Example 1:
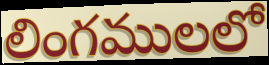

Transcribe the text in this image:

లింగములలో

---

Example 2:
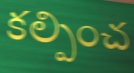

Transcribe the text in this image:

కల్పించ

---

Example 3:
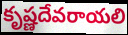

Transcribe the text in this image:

కృష్ణదేవరాయలి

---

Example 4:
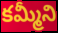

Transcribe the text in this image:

కమ్మీని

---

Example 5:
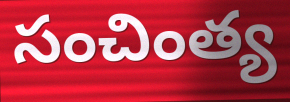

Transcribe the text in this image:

సంచింత్య